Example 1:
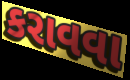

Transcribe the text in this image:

કરાવવા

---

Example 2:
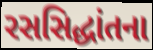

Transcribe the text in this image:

રસસિદ્ધાંતના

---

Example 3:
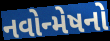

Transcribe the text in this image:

નવોન્મેષનો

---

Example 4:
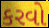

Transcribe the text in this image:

કરવો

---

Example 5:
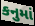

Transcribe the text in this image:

કનુમાં